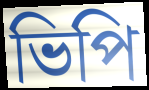
ভিপি